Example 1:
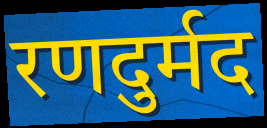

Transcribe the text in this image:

रणदुर्मद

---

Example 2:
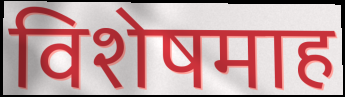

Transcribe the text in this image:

विशेषमाह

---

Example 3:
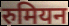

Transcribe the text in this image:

रुमियन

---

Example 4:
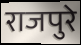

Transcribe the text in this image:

राजपुरे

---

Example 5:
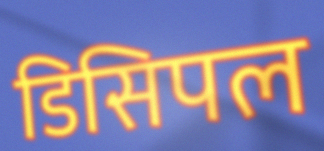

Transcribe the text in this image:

डिसिपल